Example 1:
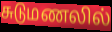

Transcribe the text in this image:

சுடுமணலில்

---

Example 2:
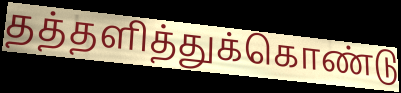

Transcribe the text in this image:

தத்தளித்துக்கொண்டு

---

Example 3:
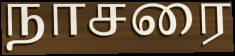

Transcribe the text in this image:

நாசரை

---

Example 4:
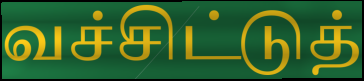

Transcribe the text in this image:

வச்சிட்டுத்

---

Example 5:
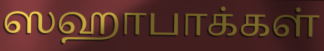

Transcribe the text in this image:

ஸஹாபாக்கள்